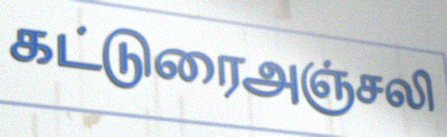
கட்டுரைஅஞ்சலி